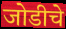
जोडीचे